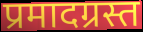
प्रमादग्रस्त